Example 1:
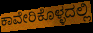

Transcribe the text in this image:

ಕಾವೇರಿಕೊಳ್ಳದಲ್ಲಿ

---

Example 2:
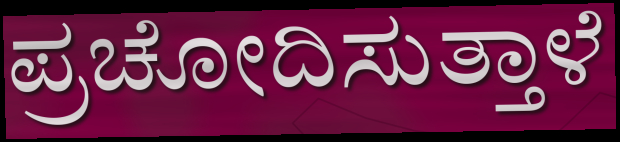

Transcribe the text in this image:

ಪ್ರಚೋದಿಸುತ್ತಾಳೆ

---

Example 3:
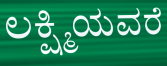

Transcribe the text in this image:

ಲಕ್ಷ್ಮಿಯವರೆ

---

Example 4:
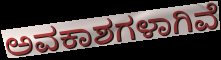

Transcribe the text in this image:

ಅವಕಾಶಗಳಾಗಿವೆ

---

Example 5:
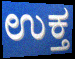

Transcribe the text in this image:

ಉಕ್ತ